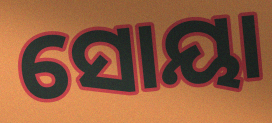
ସୋୟା